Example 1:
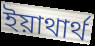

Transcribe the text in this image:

ইয়াথার্থ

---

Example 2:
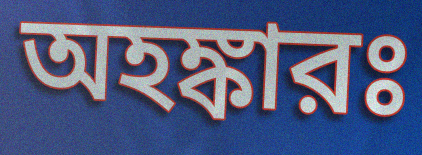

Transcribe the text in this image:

অহঙ্কারঃ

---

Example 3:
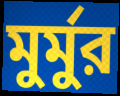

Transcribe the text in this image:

মুর্মুর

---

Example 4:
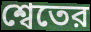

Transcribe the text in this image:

শ্বেতের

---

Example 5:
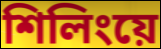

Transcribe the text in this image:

শিলিংয়ে